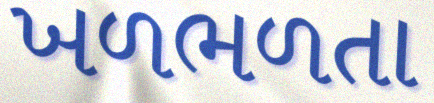
ખળભળતા